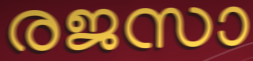
രജസാ